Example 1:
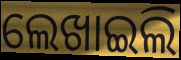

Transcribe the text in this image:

ଲେଖାଇଲି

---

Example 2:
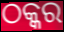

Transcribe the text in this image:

ଠକ୍କର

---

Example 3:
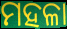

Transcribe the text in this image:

ମହଳା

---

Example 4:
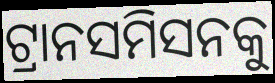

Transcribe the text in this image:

ଟ୍ରାନସମିସନକୁ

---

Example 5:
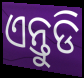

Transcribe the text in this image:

ଏନ୍ତୁଡି